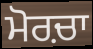
ਮੋਰ਼ਚਾ